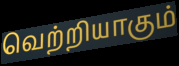
வெற்றியாகும்